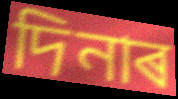
দিনাৰ